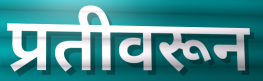
प्रतीवरून